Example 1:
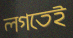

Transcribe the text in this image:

লগতেই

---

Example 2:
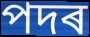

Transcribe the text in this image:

পদৰ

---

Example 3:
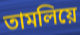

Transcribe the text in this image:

তামলিয়ে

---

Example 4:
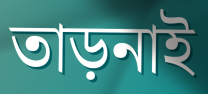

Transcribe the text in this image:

তাড়নাই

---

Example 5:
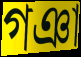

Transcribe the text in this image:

গঞা